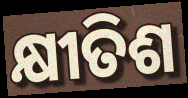
କ୍ଷୀତିଶ